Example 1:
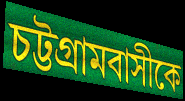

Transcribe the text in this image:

চট্টগ্রামবাসীকে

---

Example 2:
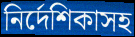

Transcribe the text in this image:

নির্দেশিকাসহ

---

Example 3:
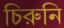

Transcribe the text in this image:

চিরুনি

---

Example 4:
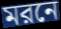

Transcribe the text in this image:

মরনে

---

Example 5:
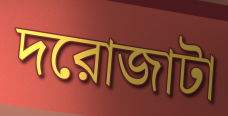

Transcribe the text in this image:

দরোজাটা